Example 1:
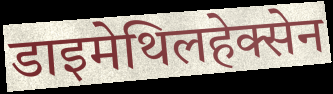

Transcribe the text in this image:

डाइमेथिलहेक्सेन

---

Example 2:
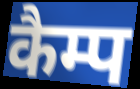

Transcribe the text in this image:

कैम्प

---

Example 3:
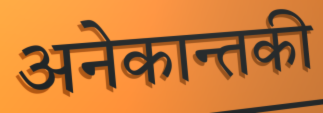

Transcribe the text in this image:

अनेकान्तकी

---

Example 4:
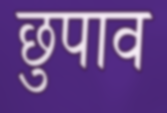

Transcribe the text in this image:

छुपाव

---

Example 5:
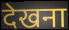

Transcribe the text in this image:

देखना